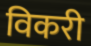
विकरी